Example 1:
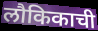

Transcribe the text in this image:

लौकिकाची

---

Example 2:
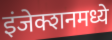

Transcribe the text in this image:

इंजेक्शनमध्ये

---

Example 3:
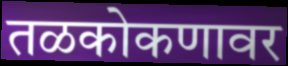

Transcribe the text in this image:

तळकोकणावर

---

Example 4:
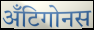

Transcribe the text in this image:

अँटिगोनस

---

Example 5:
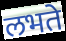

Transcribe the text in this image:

लभते